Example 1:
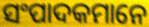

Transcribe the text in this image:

ସଂପାଦକମାନେ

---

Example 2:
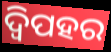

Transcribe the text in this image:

ଦ୍ୱିପହର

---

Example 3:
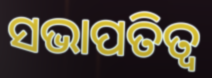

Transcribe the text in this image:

ସଭାପତିତ୍ଵ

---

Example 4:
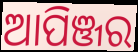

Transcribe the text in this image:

ଆପିଞ୍ଜର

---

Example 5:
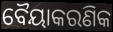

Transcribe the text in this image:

ବୈୟାକରଣିକ